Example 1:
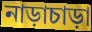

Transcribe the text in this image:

নাড়াচাড়া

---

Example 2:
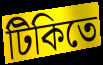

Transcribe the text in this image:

টিকিতে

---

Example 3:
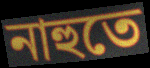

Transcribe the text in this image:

নাহুতে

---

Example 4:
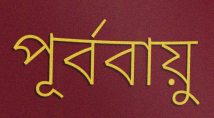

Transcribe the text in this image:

পূর্ববায়ু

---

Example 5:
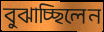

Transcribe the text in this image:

বুঝাচ্ছিলেন